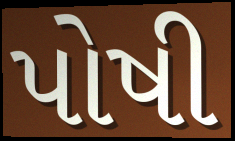
પોષી